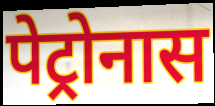
पेट्रोनास